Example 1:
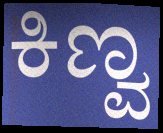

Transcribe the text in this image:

ಕಿಣ್ವ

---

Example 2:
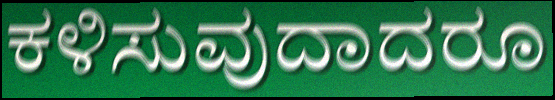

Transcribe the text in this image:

ಕಳಿಸುವುದಾದರೂ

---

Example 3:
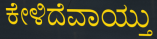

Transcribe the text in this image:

ಕೇಳಿದೆವಾಯ್ತು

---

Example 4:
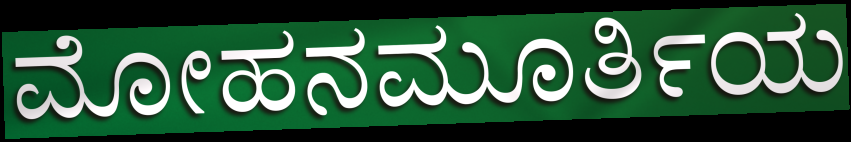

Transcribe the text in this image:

ಮೋಹನಮೂರ್ತಿಯ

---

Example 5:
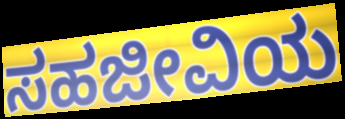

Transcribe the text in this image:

ಸಹಜೀವಿಯ